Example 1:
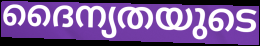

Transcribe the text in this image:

ദൈന്യതയുടെ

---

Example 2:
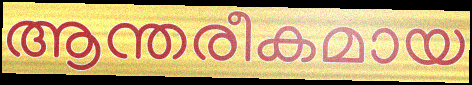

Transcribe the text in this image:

ആന്തരീകമായ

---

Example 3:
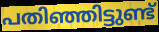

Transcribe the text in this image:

പതിഞ്ഞിട്ടുണ്ട്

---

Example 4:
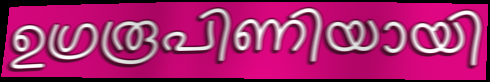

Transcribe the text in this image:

ഉഗ്രരൂപിണിയായി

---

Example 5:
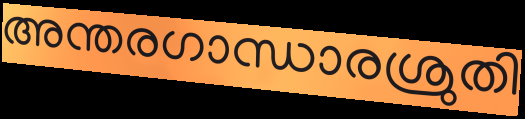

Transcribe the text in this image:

അന്തരഗാന്ധാരശ്രുതി